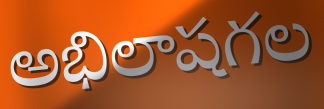
అభిలాషగల